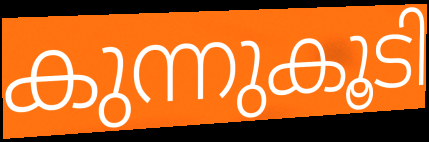
കുന്നുകൂടി